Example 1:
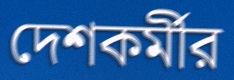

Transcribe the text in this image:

দেশকর্মীর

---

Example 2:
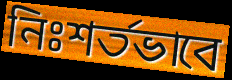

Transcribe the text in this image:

নিঃশর্তভাবে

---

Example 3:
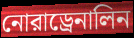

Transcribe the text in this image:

নোরাড্রেনালিন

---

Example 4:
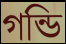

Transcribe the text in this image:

গন্ডি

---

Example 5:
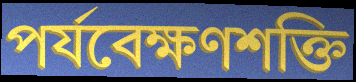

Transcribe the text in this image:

পর্যবেক্ষণশক্তি